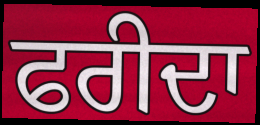
ਫਰੀਦਾ